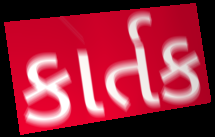
કાર્તક